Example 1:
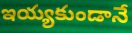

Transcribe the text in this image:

ఇయ్యకుండానే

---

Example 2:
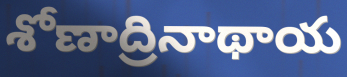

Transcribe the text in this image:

శోణాద్రినాథాయ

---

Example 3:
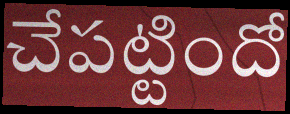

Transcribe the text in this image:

చేపట్టిందో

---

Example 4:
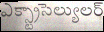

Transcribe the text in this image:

ఎక్స్ట్రాసెల్యులర్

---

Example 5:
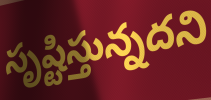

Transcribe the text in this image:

సృష్టిస్తున్నదని